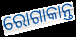
ରୋଗାକାନ୍ତ